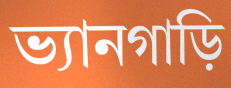
ভ্যানগাড়ি